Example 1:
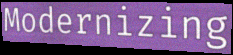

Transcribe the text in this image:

Modernizing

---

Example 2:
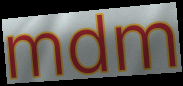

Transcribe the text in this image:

mdm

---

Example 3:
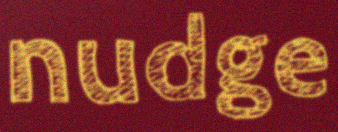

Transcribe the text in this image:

nudge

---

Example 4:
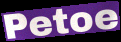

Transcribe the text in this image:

Petoe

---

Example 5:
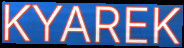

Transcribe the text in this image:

KYAREK